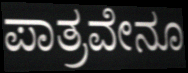
ಪಾತ್ರವೇನೂ